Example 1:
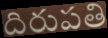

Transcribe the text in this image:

దిరుపతి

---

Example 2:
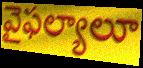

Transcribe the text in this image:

వైఫల్యాలూ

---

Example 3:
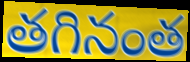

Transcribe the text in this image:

తగినంత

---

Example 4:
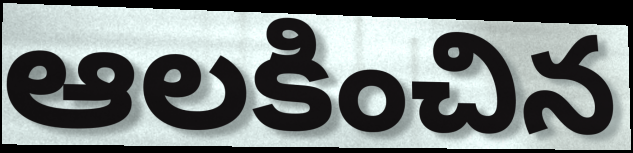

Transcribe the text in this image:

ఆలకించిన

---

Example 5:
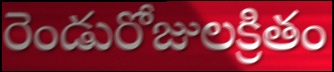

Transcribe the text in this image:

రెండురోజులక్రితం